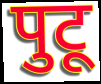
पुटू